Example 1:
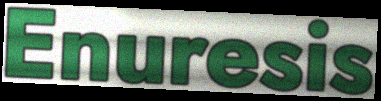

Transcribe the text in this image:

Enuresis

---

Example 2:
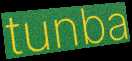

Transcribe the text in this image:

tunba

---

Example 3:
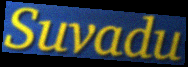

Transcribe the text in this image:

Suvadu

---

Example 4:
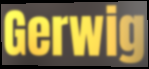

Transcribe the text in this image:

Gerwig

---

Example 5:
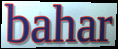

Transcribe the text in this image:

bahar